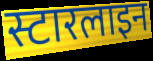
स्टारलाइन